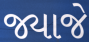
જ્યાજે